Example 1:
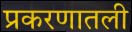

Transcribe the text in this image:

प्रकरणातली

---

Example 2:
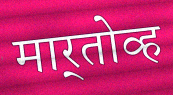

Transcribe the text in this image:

मार्तोव्ह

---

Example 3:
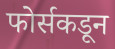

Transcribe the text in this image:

फोर्सकडून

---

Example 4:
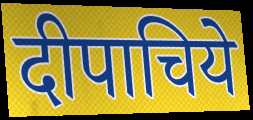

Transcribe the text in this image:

दीपाचिये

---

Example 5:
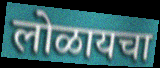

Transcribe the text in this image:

लोळायचा